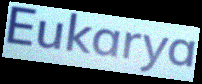
Eukarya